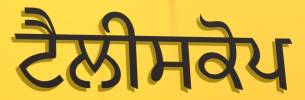
ਟੈਲੀਸਕੋਪ